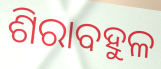
ଶିରାବହୁଳ